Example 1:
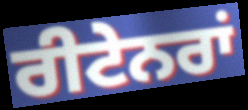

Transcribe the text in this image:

ਰੀਟੇਨਰਾਂ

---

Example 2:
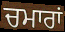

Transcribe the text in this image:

ਚਮਾਰਾਂ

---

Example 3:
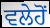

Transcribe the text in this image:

ਵਲੇਹੋਂ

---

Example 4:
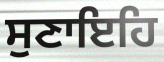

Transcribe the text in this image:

ਸੁਣਾਇਹਿ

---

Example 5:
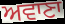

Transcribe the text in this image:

ਅਵਾਣਾ